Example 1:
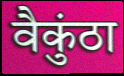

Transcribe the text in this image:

वैकुंठा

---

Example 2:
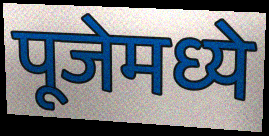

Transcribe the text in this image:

पूजेमध्ये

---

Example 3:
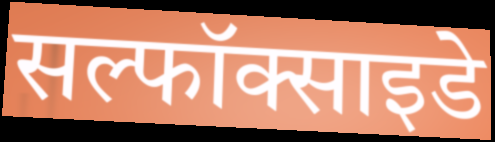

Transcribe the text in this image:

सल्फॉक्साइडे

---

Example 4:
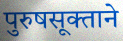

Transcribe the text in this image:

पुरुषसूक्ताने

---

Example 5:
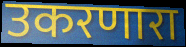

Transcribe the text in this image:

उकरणारा